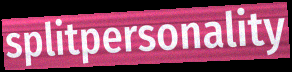
splitpersonality